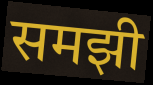
समझी